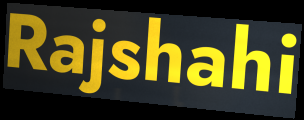
Rajshahi